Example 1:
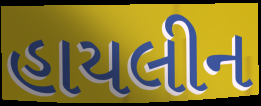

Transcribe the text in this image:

હાયલીન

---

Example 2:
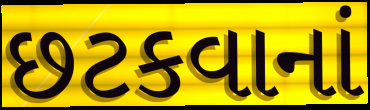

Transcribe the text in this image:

છટકવાનાં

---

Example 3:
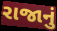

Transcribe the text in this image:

રાજાનું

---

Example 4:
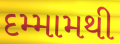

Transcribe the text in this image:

દમ્મામથી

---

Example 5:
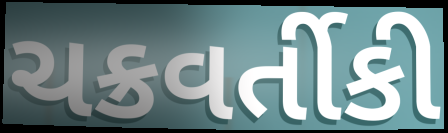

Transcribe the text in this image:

ચક્રવર્તીકી